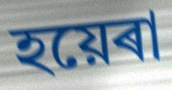
হয়েৰা